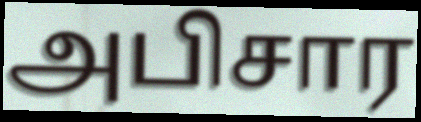
அபிசார